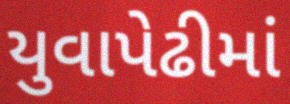
યુવાપેઢીમાં